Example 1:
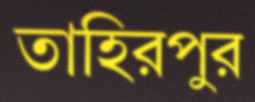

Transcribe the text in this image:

তাহিরপুর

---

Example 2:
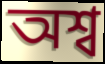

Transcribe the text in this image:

অশ্ব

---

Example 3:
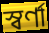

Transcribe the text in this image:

স্বর্ণা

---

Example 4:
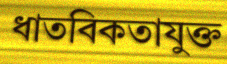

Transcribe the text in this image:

ধাতবিকতাযুক্ত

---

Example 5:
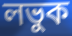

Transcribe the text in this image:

লভুক